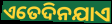
ଏତେଦିନଯାଏ